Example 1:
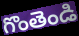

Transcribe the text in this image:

గొంతెండి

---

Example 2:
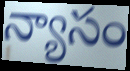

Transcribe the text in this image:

న్యాసం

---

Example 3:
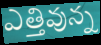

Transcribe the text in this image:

ఎత్తివున్న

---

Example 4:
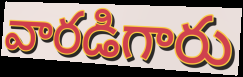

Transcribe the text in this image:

వారడిగారు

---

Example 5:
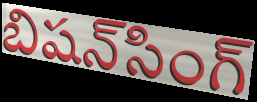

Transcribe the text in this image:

బిషన్‌సింగ్